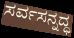
ಸರ್ವಸನ್ನದ್ಧ